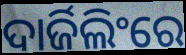
ଦାର୍ଜିଲିଂରେ